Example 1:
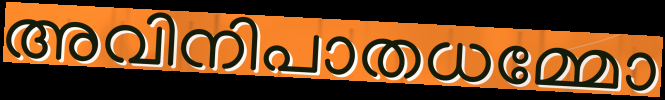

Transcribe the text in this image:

അവിനിപാതധമ്മോ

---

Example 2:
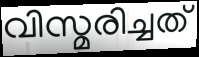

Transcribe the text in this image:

വിസ്മരിച്ചത്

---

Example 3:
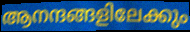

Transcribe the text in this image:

ആനന്ദങ്ങളിലേക്കും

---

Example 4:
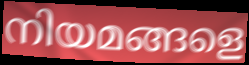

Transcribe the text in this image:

നിയമങ്ങളെ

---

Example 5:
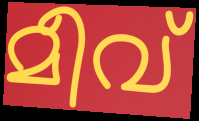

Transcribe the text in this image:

മീവ്